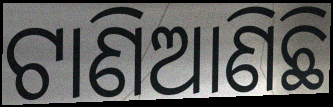
ଟାଣିଆଣିଛି